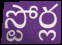
స్టోర్ల